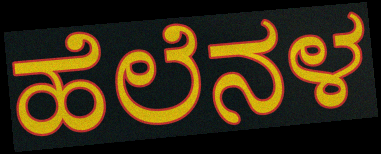
ಹೆಲೆನಳ